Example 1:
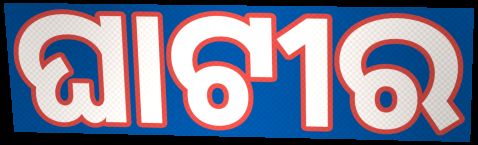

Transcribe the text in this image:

ଘାଟୀର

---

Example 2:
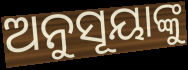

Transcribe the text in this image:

ଅନୁସୂୟାଙ୍କୁ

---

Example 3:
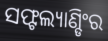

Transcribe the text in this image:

ସଫ୍ଟଲ୍ୟାଣ୍ଡିଂର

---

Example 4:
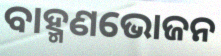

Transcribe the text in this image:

ବାହ୍ମଣଭୋଜନ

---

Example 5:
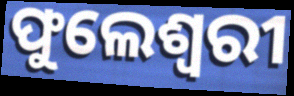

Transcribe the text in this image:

ଫୁଲେଶ୍ବରୀ